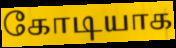
கோடியாக